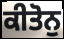
ਕੀਤੋਨੁ